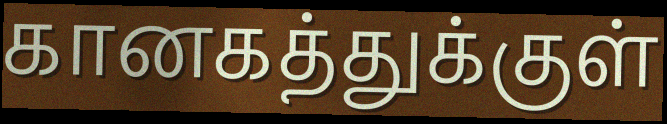
கானகத்துக்குள்